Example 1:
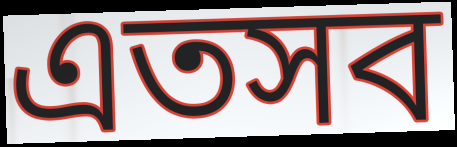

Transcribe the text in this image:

এতসব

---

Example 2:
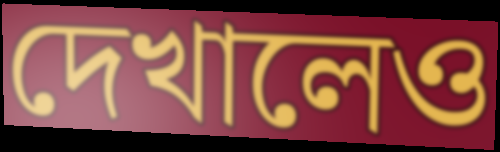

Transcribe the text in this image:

দেখালেও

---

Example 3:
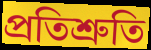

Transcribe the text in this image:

প্রতিশ্রুতি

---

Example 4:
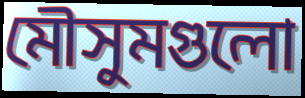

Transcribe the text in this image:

মৌসুমগুলো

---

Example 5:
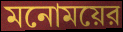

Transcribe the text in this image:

মনোময়ের